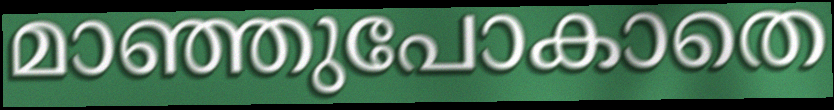
മാഞ്ഞുപോകാതെ